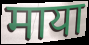
माया